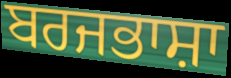
ਬਰਜਭਾਸ਼ਾ